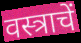
वस्त्राचें